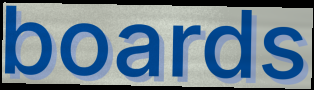
boards